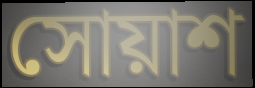
সোয়াশ